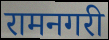
रामनगरी